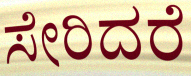
ಸೇರಿದರೆ